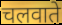
चलवाते